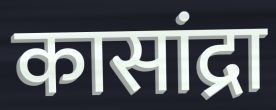
कासांद्रा